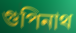
গুপিনাথ